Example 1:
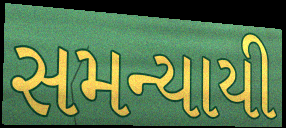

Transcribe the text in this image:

સમન્યાયી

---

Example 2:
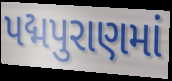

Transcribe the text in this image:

પદ્મપુરાણમાં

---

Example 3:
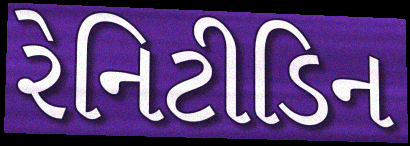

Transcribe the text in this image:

રેનિટીડિન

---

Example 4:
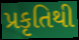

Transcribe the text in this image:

પ્રકૃતિથી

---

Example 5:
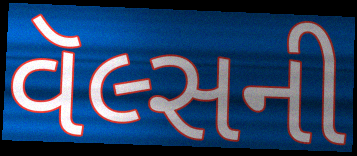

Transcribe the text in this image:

વૅલ્સની